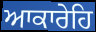
ਆਕਾਰੇਹਿ